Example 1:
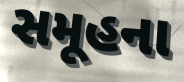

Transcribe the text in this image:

સમૂહના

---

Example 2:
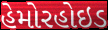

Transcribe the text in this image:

હેમોરહોઇડ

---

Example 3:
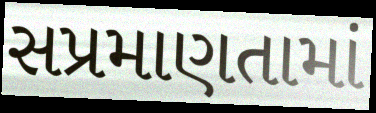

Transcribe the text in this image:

સપ્રમાણતામાં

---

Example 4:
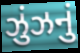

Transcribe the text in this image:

ઝુંઝનું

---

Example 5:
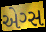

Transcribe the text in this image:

એગ્સ